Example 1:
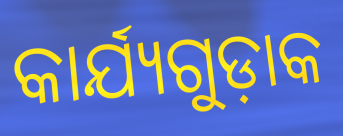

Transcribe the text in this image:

କାର୍ଯ୍ୟଗୁଡ଼ାକ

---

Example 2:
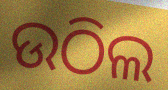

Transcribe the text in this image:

ଉଠିଲ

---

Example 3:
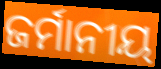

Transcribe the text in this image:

ଜର୍ମାନୀୟ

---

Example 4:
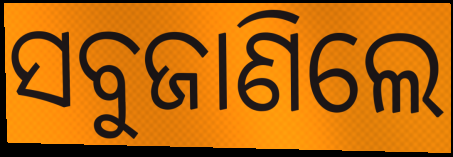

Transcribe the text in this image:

ସବୁଜାଣିଲେ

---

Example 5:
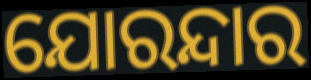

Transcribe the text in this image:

ଯୋରନ୍ଦାର